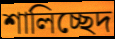
শালিচ্ছেদ